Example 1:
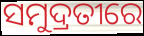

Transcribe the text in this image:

ସମୁଦ୍ରତୀରେ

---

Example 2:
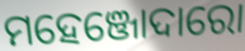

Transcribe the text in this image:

ମହେଞ୍ଜୋଦାରୋ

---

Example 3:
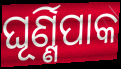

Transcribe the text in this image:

ଘୂର୍ଣ୍ଣିପାକ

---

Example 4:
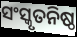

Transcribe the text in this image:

ସଂସ୍କୃତନିଷ୍ଠ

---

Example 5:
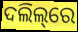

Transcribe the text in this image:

ଦଲିଲ୍‌ରେ